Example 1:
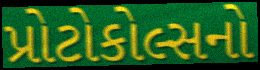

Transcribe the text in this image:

પ્રોટોકોલ્સનો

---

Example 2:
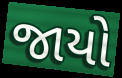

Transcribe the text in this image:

જાયો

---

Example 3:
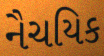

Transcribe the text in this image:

નૈચયિક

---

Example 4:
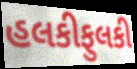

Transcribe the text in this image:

હલકીફુલકી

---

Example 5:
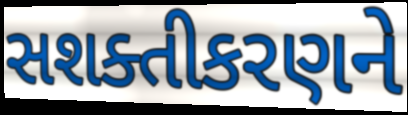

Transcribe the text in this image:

સશક્તીકરણને